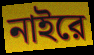
নাইরে